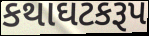
કથાઘટકરૂપ